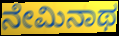
ನೇಮಿನಾಥ